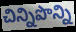
చిన్నిపొన్ని